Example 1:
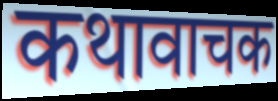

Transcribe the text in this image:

कथावाचक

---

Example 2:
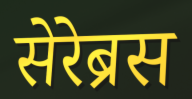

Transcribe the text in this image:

सेरेब्रस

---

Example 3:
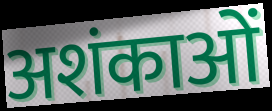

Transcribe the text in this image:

अशंकाओं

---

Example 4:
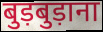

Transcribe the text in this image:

बुड़बुड़ाना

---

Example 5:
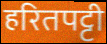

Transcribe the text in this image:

हरितपट्टी